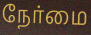
நேர்மை